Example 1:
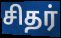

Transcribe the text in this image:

சிதர்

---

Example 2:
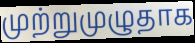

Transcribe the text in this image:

முற்றுமுழுதாக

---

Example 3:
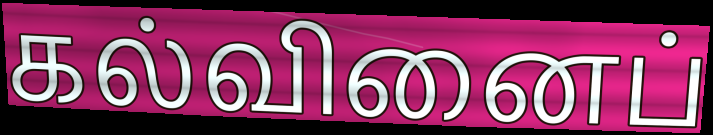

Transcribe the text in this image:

கல்வினைப்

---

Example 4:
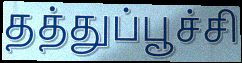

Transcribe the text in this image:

தத்துப்பூச்சி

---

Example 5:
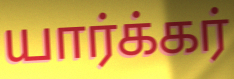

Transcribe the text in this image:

யார்க்கர்